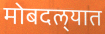
मोबदल्यात